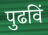
पुढविं